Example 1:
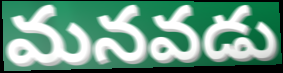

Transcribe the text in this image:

మనవడు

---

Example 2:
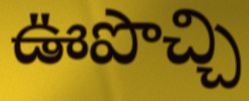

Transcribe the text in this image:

ఊపొచ్చి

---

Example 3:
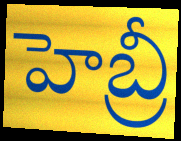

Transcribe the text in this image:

హెబ్రీ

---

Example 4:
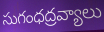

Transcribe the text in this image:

సుగంధద్రవ్యాలు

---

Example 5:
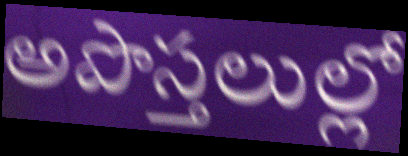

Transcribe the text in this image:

అపొస్తలుల్లో